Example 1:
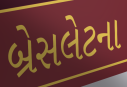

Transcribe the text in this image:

બ્રેસલેટના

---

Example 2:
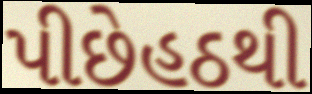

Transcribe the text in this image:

પીછેહઠથી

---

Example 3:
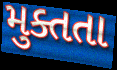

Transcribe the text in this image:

મુક્તતા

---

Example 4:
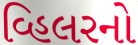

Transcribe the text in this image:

વ્હિલરનો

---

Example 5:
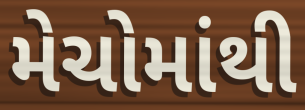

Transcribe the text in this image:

મેચોમાંથી